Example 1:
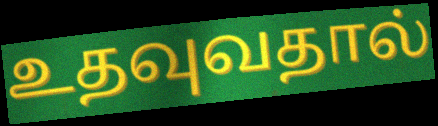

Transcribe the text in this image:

உதவுவதால்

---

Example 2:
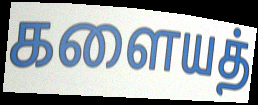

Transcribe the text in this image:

களையத்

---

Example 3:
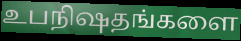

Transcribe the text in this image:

உபநிஷதங்களை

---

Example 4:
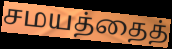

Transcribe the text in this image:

சமயத்தைத்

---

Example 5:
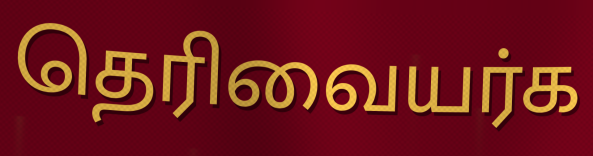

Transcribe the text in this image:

தெரிவையர்க